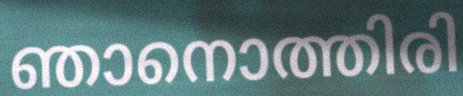
ഞാനൊത്തിരി